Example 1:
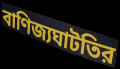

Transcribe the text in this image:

বাণিজ্যঘাটতির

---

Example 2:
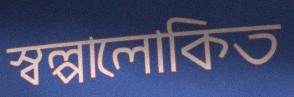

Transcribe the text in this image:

স্বল্পালোকিত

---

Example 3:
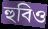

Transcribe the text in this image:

হুবিও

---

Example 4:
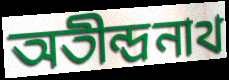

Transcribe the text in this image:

অতীন্দ্রনাথ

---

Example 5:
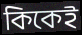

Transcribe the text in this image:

কিকেই